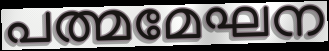
പത്മമേഘന